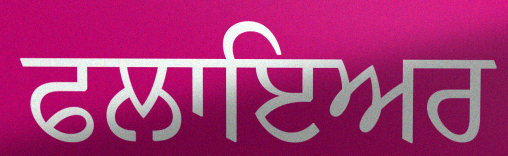
ਫਲਾਇਅਰ